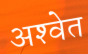
अश्‍वेत